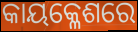
କାୟକ୍ଳେଶରେ